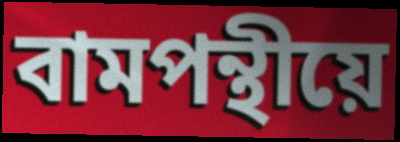
বামপন্থীয়ে